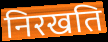
निरखति